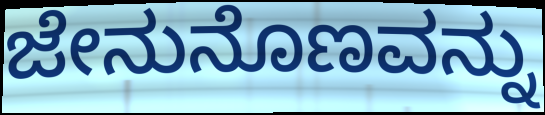
ಜೇನುನೊಣವನ್ನು